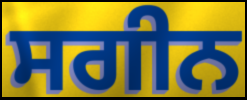
ਸਗੀਨ